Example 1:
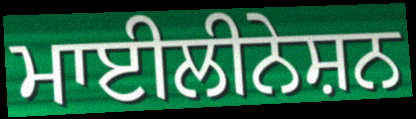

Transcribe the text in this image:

ਮਾਈਲੀਨੇਸ਼ਨ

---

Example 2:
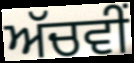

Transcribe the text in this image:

ਅੱਚਵੀਂ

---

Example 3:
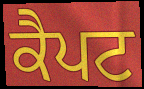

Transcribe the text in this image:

ਕੈਪਟ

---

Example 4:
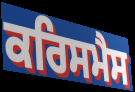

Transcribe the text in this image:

ਕਰਿਸਮੈਸ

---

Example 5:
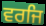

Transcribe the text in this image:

ਵਰਜਿ